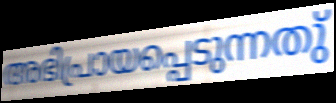
അഭിപ്രായപ്പെടുന്നതു്